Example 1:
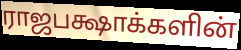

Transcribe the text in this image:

ராஜபக்ஷாக்களின்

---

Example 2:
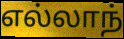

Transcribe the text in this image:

எல்லாந்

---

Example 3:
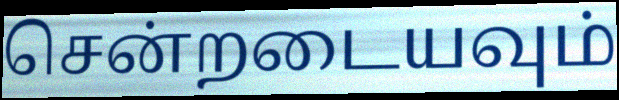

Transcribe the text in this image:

சென்றடையவும்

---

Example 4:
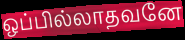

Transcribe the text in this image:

ஒப்பில்லாதவனே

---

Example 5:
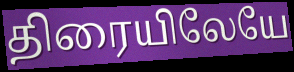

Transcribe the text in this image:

திரையிலேயே